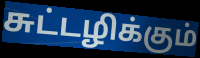
சுட்டழிக்கும்